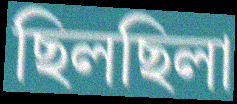
ছিলছিলা